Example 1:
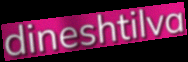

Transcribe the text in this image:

dineshtilva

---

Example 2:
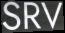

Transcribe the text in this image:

SRV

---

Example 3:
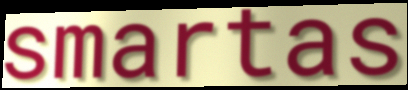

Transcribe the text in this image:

smartas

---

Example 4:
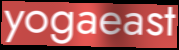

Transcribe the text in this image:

yogaeast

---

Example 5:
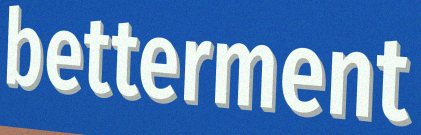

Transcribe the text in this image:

betterment